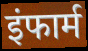
इंफार्म